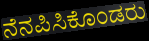
ನೆನಪಿಸಿಕೊಂಡರು